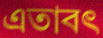
এতাবৎ